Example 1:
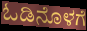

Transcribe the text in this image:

ಓಡಿನೊಳಗೆ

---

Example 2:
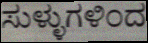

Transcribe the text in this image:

ಸುಳ್ಳುಗಳಿಂದ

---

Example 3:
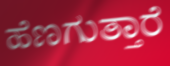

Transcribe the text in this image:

ಹೆಣಗುತ್ತಾರೆ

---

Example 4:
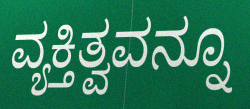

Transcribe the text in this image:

ವ್ಯಕ್ತಿತ್ವವನ್ನೂ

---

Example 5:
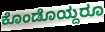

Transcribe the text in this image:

ಕೊಂಡೊಯ್ದರೂ